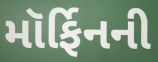
મૉર્ફિનની